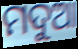
ମଦୁଆ